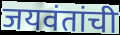
जयवंतांची